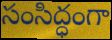
సంసిద్ధంగా